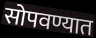
सोपवण्यात